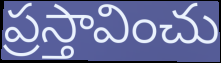
ప్రస్తావించు